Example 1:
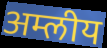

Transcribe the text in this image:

अम्‍लीय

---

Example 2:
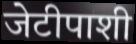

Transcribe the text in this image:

जेटीपाशी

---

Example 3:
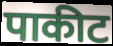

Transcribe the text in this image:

पाकीट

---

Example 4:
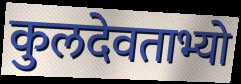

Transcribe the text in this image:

कुलदेवताभ्यो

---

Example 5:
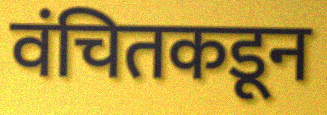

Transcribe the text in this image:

वंचितकडून